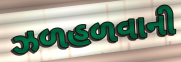
ઝળહળવાની